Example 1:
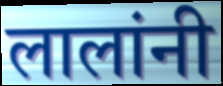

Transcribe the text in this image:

लालांनी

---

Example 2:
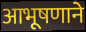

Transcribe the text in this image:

आभूषणाने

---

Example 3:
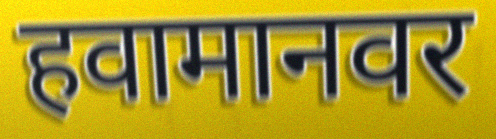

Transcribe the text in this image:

हवामानवर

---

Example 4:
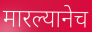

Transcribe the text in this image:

मारल्यानेच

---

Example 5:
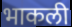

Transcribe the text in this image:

भाकली